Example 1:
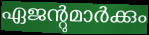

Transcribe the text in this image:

ഏജന്റുമാർക്കും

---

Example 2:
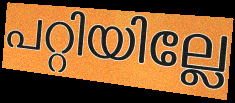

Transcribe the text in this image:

പറ്റിയില്ലേ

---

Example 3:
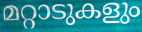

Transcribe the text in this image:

മറ്റാടുകളും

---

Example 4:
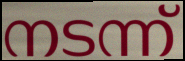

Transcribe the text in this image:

നടന്ന്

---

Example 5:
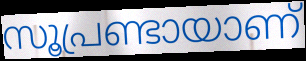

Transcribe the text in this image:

സൂപ്രണ്ടായാണ്